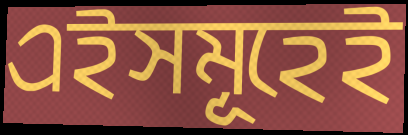
এইসমূহেই